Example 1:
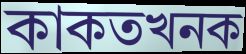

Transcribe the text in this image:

কাকতখনক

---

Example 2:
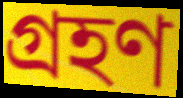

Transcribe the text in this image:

গ্ৰহণ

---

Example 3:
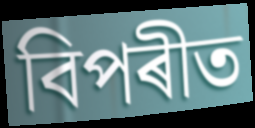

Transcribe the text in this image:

বিপৰীত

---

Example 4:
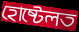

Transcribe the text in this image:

হোষ্টেলত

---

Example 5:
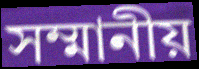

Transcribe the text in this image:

সম্মানীয়